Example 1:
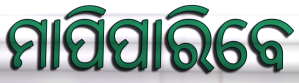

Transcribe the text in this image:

ମାପିପାରିବେ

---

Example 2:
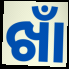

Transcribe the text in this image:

ଖାଁ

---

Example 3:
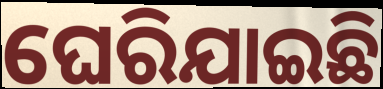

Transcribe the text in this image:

ଘେରିଯାଇଛି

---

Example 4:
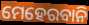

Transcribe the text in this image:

ମେହେରବାନି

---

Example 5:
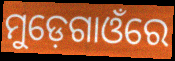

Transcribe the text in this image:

ମୁଡ଼େଗାଓଁରେ